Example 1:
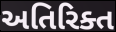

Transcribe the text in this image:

અતિરિક્ત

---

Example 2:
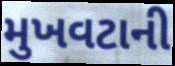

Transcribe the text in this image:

મુખવટાની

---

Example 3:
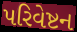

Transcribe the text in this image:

પરિવેષ્ટન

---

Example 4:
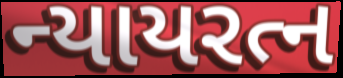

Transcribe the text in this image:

ન્યાયરત્ન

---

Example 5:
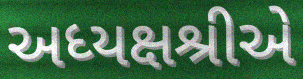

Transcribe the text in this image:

અધ્યક્ષશ્રીએ